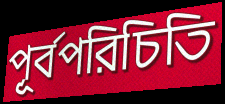
পূর্বপরিচিতি